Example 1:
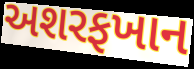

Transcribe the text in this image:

અશરફખાન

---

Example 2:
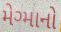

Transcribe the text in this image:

મેગ્માનો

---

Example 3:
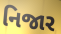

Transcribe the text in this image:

નિજાર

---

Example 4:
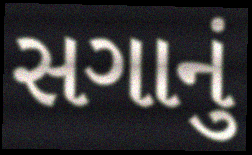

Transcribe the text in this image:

સગાનું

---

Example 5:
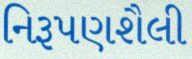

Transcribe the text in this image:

નિરૂપણશૈલી